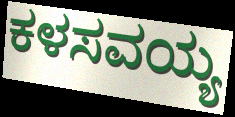
ಕಳಸವಯ್ಯ